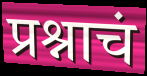
प्रश्नाचं